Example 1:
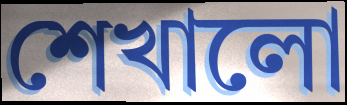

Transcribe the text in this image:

শেখালো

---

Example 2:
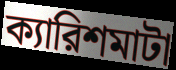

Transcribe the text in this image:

ক্যারিশমাটা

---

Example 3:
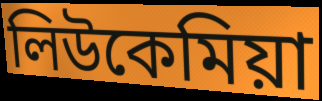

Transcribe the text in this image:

লিউকেমিয়া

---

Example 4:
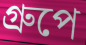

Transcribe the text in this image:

গ্রুপে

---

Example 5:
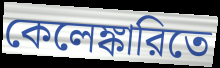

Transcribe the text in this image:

কেলেঙ্কারিতে